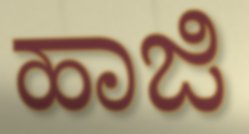
ಹಾಜಿ